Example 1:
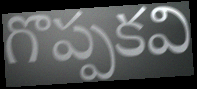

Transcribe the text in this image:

గొప్పకవి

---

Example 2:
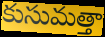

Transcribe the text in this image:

కుసుమత్తా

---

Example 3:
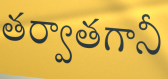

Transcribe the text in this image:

తర్వాతగానీ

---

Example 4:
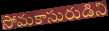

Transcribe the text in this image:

సోమకాసురుడిని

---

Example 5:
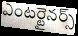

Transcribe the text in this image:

ఎంటర్టైనర్స్